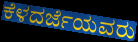
ಕೆಳದರ್ಜೆಯವರು